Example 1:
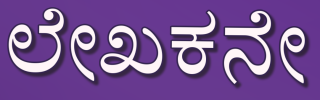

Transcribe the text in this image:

ಲೇಖಕನೇ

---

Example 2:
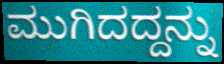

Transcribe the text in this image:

ಮುಗಿದದ್ದನ್ನು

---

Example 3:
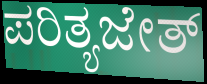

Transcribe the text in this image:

ಪರಿತ್ಯಜೇತ್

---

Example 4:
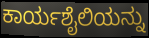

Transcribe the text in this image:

ಕಾರ್ಯಶೈಲಿಯನ್ನು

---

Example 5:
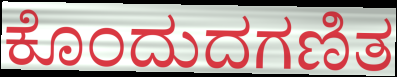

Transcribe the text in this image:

ಕೊಂದುದಗಣಿತ